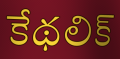
కేథలిక్